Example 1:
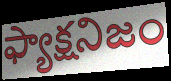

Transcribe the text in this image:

ఫ్యాక్షనిజం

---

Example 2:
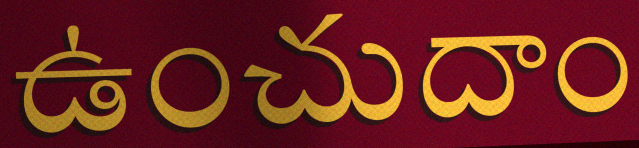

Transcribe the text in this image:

ఉంచుదాం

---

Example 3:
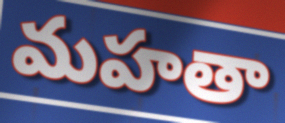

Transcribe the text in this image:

మహతా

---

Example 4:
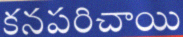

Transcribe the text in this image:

కనపరిచాయి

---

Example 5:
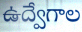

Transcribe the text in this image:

ఉద్వేగాల